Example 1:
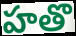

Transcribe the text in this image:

హతొ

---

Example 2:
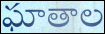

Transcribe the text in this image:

ఘాతాల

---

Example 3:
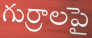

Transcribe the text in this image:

గుర్రాలపై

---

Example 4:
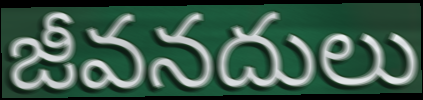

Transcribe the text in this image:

జీవనదులు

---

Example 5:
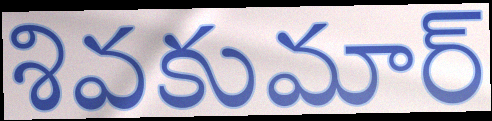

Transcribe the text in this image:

శివకుమార్